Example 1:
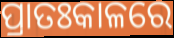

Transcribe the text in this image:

ପ୍ରାତଃକାଳରେ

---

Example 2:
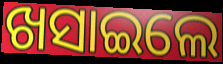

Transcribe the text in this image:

ଖସାଇଲେ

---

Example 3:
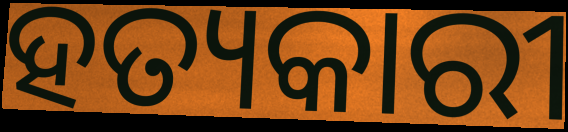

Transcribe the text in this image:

ହତ୍ୟକାରୀ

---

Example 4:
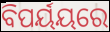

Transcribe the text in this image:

ବିପର୍ୟୟରେ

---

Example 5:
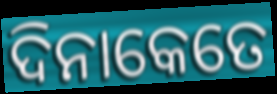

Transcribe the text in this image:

ଦିନାକେତେ